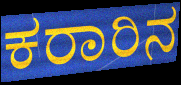
ಕರಾರಿನ